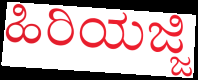
ಹಿರಿಯಜ್ಜಿ